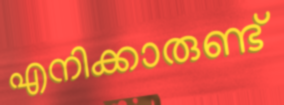
എനിക്കാരുണ്ട്